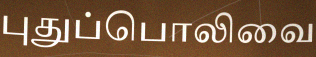
புதுப்பொலிவை